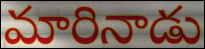
మారినాడు